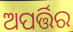
ଅପର୍ତ୍ତିର